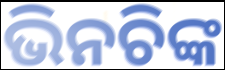
ଭିନଚିଙ୍କ